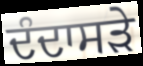
ਦੰਦਾਸੜੇ